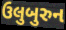
ઉલુબુરુન